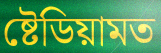
ষ্টেডিয়ামত